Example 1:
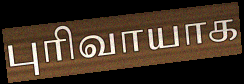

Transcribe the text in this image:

புரிவாயாக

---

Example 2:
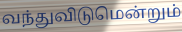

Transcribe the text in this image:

வந்துவிடுமென்றும்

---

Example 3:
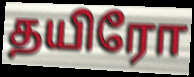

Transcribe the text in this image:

தயிரோ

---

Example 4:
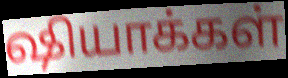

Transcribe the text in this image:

ஷியாக்கள்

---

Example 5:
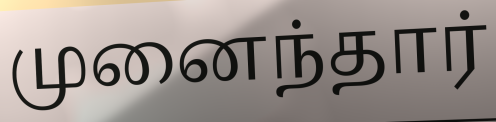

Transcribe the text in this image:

முனைந்தார்